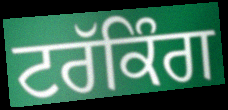
ਟਰੱਕਿੰਗ